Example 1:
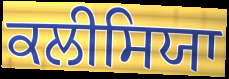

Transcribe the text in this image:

ਕਲੀਸਿਯਾ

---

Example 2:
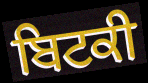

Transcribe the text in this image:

ਬਿਟਕੀ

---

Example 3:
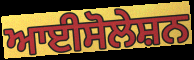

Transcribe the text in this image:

ਆਈਸੋਲੇਸ਼ਨ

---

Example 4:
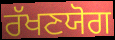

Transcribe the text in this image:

ਰੱਖਣਯੋਗ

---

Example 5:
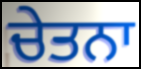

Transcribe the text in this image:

ਚੇਤਨਾ